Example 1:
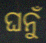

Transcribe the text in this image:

ଘନୁଁ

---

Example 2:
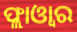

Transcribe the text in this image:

ଫ୍ଲାଓ୍ବାର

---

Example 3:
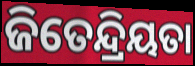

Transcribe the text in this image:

ଜିତେନ୍ଦ୍ରିୟତା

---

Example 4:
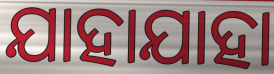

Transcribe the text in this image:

ଯାହାଯାହା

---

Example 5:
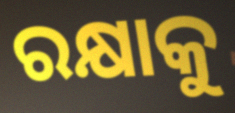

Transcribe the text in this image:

ରକ୍ଷାକୁ